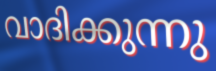
വാദിക്കുന്നു